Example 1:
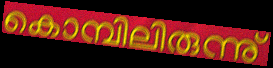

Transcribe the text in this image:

കൊമ്പിലിരുന്നു്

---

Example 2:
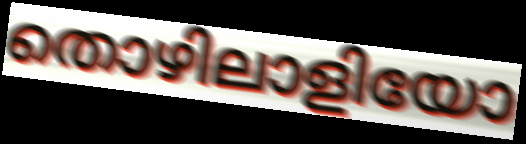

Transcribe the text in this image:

തൊഴിലാളിയോ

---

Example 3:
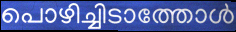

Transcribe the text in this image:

പൊഴിച്ചിടാത്തോൾ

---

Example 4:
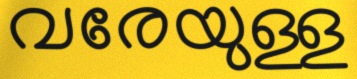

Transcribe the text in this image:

വരേയുള്ള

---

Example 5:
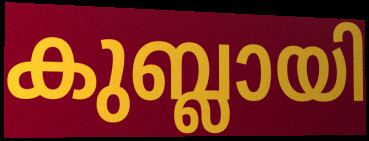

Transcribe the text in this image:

കുബ്ലായി